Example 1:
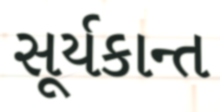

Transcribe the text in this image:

સૂર્યકાન્ત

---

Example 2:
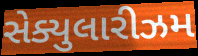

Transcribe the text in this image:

સેક્યુલારીઝમ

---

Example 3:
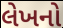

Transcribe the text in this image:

લેખનો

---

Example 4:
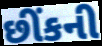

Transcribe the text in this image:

છીંકની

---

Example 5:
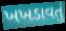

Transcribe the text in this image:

ખખડાવતું